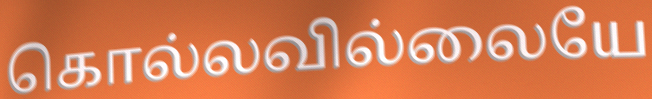
கொல்லவில்லையே